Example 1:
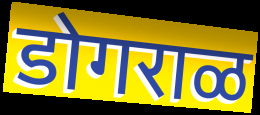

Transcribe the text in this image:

डोगराळ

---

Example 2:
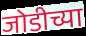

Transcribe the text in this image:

जोडीच्या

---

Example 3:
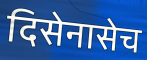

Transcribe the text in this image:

दिसेनासेच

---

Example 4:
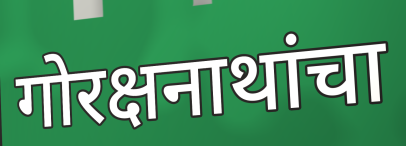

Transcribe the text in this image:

गोरक्षनाथांचा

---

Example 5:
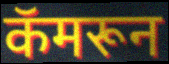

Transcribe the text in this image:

कॅमरून